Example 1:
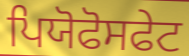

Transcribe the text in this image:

ਪਿਯੋਫੋਸਫੇਟ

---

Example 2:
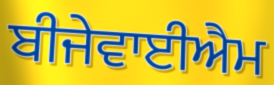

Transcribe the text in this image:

ਬੀਜੇਵਾਈਐਮ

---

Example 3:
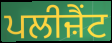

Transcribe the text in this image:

ਪਲੀਜ਼ੈਂਟ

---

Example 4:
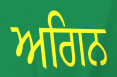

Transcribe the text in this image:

ਅਗਿਨ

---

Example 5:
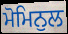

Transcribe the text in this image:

ਮੋਮਿਨੁਲ